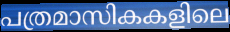
പത്രമാസികകളിലെ